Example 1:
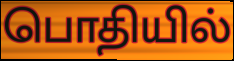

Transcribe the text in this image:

பொதியில்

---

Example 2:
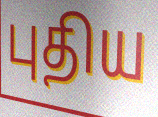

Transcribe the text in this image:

புதிய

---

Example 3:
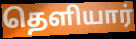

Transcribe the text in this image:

தெளியார்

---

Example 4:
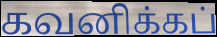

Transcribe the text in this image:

கவனிக்கப்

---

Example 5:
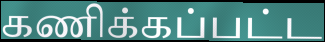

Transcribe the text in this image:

கணிக்கப்பட்ட